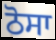
ਠੋਸਾ